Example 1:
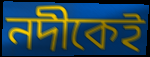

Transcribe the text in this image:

নদীকেই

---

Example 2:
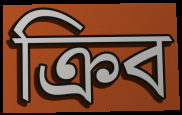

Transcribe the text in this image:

ক্রিব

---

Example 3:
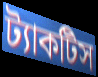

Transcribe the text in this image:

ট্যাকটিস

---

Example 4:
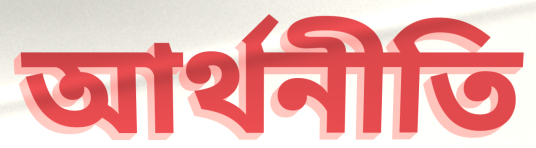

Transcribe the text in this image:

আর্থনীতি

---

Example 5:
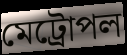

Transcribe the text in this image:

মেট্রোপল